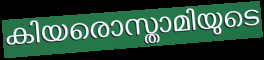
കിയരൊസ്താമിയുടെ